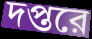
দপ্তরে